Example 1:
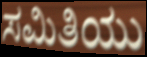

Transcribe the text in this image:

ಸಮಿತಿಯು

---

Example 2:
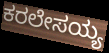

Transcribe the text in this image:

ಕರಲೇಸಯ್ಯ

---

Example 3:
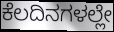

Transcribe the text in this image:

ಕೆಲದಿನಗಳಲ್ಲೇ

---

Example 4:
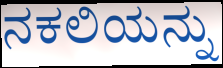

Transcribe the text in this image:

ನಕಲಿಯನ್ನು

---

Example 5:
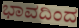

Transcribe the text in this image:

ಭಾವದಿಂದ